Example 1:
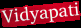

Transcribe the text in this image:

Vidyapati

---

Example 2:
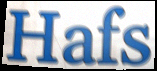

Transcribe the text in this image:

Hafs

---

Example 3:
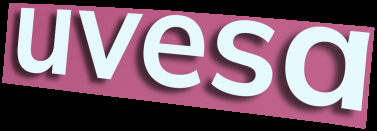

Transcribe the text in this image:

uvesa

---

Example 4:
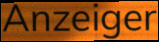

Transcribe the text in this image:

Anzeiger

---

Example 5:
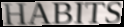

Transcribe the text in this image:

HABITS